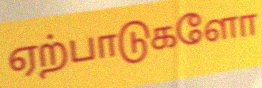
ஏற்பாடுகளோ